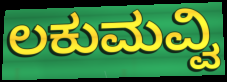
ಲಕುಮವ್ವಿ